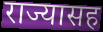
राज्यासह